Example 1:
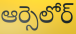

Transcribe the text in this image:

ఆర్సెలోర్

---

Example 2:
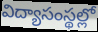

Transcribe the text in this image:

విద్యాసంస్థల్లో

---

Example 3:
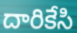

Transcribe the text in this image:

దారికేసి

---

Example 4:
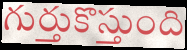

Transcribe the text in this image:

గుర్తుకొస్తుంది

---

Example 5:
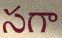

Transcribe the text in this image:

సగా